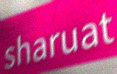
sharuat